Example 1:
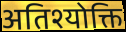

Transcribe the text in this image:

अतिश्योक्ति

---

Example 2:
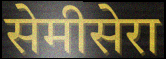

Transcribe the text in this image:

सेमीसेरा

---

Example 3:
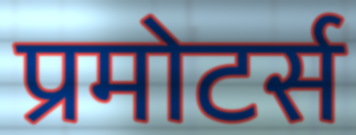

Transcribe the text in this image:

प्रमोटर्स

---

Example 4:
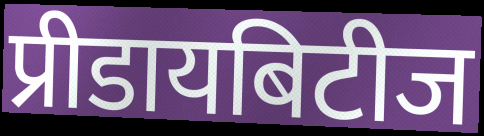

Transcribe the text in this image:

प्रीडायबिटीज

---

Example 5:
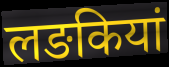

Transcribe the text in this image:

लङकियां